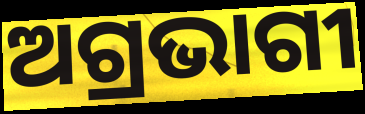
ଅଗ୍ରଭାଗୀ